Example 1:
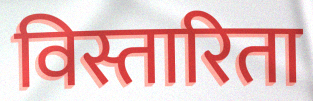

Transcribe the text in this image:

विस्तारिता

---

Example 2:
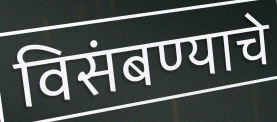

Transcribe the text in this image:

विसंबण्याचे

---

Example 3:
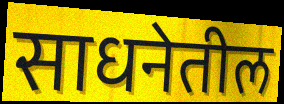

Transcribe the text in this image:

साधनेतील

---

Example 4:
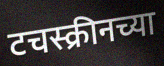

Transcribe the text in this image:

टचस्क्रीनच्या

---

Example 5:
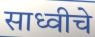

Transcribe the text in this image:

साध्वीचे